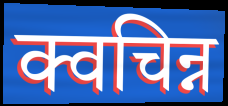
क्वचिन्न